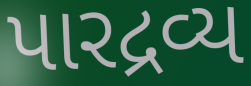
પારદ્રવ્ય